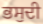
ਭਸੁਦੀ